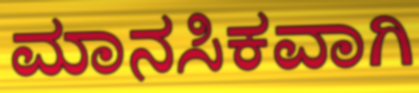
ಮಾನಸಿಕವಾಗಿ